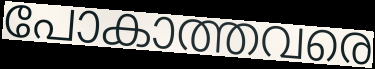
പോകാത്തവരെ